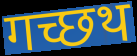
गच्छथ